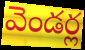
వెండర్ల